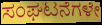
ಸಂಘಟನೆಗಳೇ